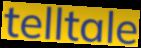
telltale